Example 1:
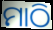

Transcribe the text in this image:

ମାଠି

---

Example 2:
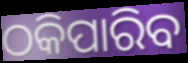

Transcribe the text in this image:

ଠକିପାରିବ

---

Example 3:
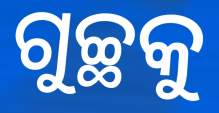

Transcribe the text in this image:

ଗୁଚ୍ଛକୁ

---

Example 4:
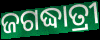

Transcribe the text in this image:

ଜଗଦ୍ଧାତ୍ରୀ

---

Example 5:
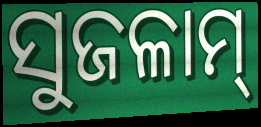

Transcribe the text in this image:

ସୁଜଳାମ୍